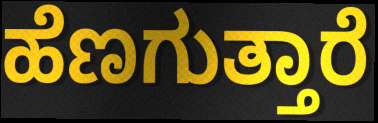
ಹೆಣಗುತ್ತಾರೆ